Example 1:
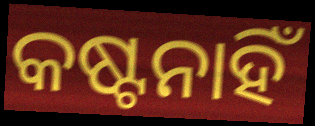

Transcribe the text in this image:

କଷ୍ଟନାହିଁ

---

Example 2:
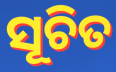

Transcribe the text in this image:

ସୂଚିତ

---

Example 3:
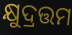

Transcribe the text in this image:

କ୍ଷୁଦ୍ରତ୍ତମ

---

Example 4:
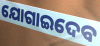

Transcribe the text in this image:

ଯୋଗାଇଦେବ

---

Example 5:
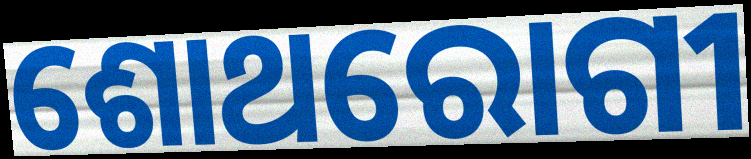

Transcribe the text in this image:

ଶୋଥରୋଗୀ